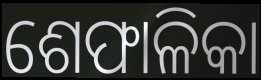
ଶେଫାଳିକା